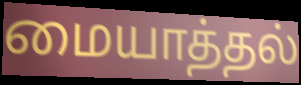
மையாத்தல்